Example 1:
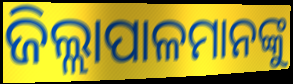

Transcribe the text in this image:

ଜିଲ୍ଲାପାଳମାନଙ୍କୁ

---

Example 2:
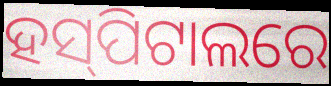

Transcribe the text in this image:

ହସ୍‌ପିଟାଲରେ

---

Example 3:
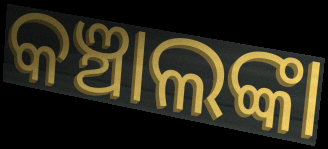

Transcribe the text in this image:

କଞ୍ଚାଲଙ୍କା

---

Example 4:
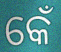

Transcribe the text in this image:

କେଁ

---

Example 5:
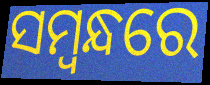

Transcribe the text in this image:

ସମ୍ବନ୍ଧରେ